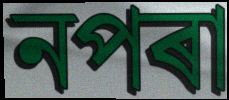
নপৰা